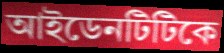
আইডেনটিটিকে